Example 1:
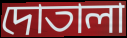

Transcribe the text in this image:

দোতালা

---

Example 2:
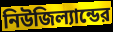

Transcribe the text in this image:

নিউজিল্যান্ডের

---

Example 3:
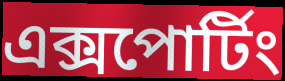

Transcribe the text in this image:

এক্সপোর্টিং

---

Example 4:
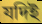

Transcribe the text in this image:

যদিই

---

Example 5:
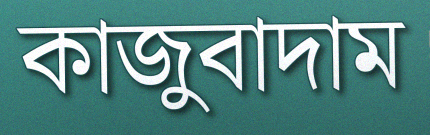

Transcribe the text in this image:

কাজুবাদাম